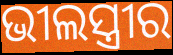
ଭୀଲସ୍ତ୍ରୀର